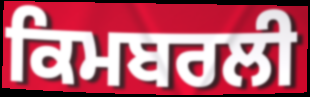
ਕਿਮਬਰਲੀ